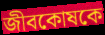
জীবকোষকে